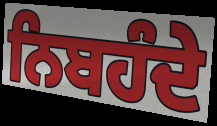
ਨਿਬਹੰਦੇ